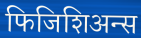
फिजिशिअन्स